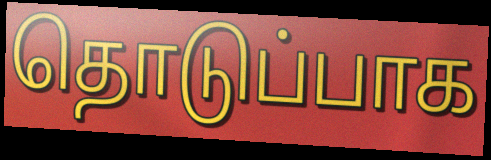
தொடுப்பாக